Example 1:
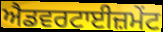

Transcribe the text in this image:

ਐਡਵਰਟਾਈਜ਼ਮੇਂਟ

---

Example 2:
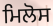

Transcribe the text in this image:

ਮਿਲੋਸ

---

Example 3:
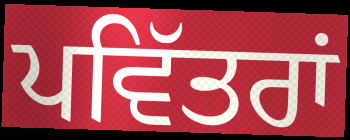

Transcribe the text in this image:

ਪਵਿੱਤਰਾਂ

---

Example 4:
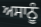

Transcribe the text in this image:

ਅਸਾਨੂੰ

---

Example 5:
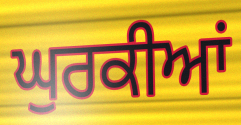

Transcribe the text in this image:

ਘੁਰਕੀਆਂ